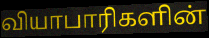
வியாபாரிகளின்